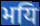
भयि